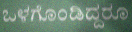
ಒಳಗೊಂಡಿದ್ದರೂ